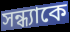
সন্ধ্যাকে